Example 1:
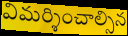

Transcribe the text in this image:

విమర్శించాల్సిన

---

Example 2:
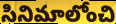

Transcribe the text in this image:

సినిమాలోంచి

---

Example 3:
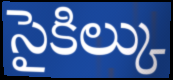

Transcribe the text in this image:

సైకిల్కు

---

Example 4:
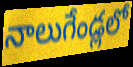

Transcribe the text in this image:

నాలుగేండ్లలో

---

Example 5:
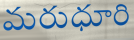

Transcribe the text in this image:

మరుధూరి